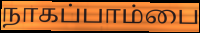
நாகப்பாம்பை